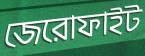
জেরোফাইট